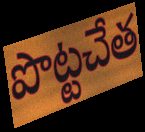
పొట్టచేత